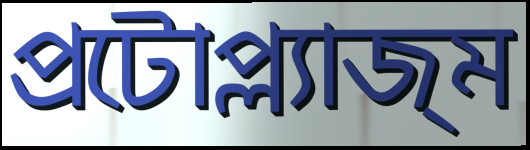
প্রটোপ্ল্যাজ্ম